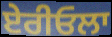
ਏਰੀਓਲਾ